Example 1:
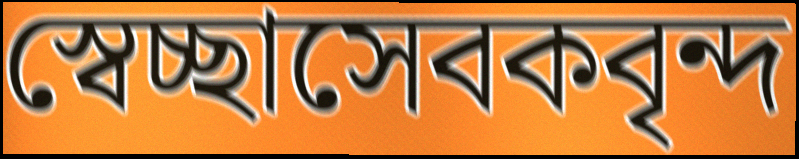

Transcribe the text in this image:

স্বেচ্ছাসেবকবৃন্দ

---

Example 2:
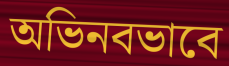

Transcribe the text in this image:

অভিনবভাবে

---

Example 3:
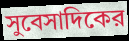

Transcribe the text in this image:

সুবেসাদিকের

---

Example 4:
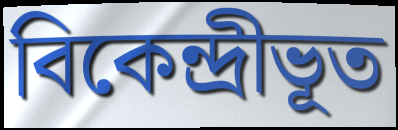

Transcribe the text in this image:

বিকেন্দ্রীভূত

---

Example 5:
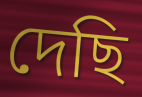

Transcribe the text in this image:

দেছি